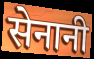
सेनानी